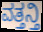
ವತ್ತನ್ತಿ